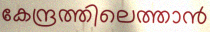
കേന്ദ്രത്തിലെത്താൻ